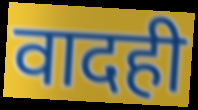
वादही